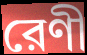
রেণী